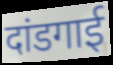
दांडगाई